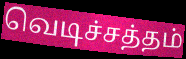
வெடிச்சத்தம்